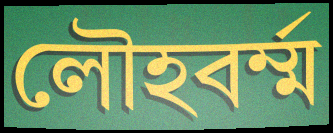
লৌহবর্ম্ম